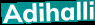
Adihalli